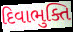
દિવાભુક્તિ